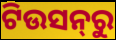
ଟିଉସନ୍‌ରୁ